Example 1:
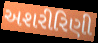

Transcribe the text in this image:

અશરીરિણી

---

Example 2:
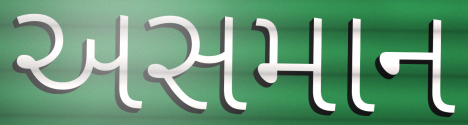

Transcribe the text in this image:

અસમાન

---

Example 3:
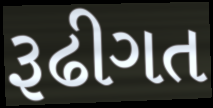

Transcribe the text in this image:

રૂઢીગત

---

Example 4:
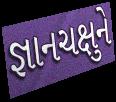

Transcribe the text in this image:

જ્ઞાનચક્ષુને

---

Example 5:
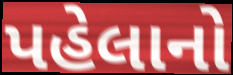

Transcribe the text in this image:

પહેલાનો